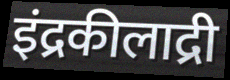
इंद्रकीलाद्री